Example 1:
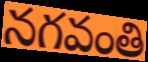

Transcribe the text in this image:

నగవంతి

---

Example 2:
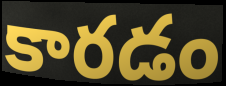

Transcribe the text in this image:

కారడం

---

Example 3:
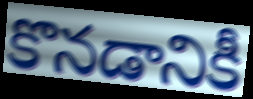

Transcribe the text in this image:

కొనడానికీ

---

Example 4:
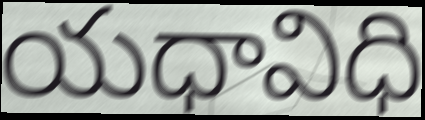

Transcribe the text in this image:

యధావిధి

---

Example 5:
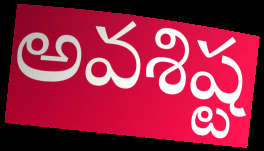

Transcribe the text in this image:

అవశిష్ట